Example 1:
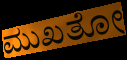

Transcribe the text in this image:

ಮುಖತೋ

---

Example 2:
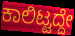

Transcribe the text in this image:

ಕಾಲಿಟ್ಟದ್ದೇ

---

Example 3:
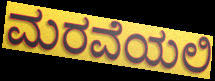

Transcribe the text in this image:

ಮರವೆಯಲಿ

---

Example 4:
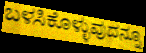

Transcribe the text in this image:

ಬಳಸಿಕೊಳ್ಳುವುದನ್ನೂ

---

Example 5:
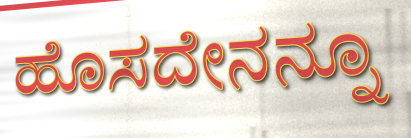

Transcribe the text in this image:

ಹೊಸದೇನನ್ನೂ